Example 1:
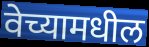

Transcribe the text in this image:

वेच्यामधील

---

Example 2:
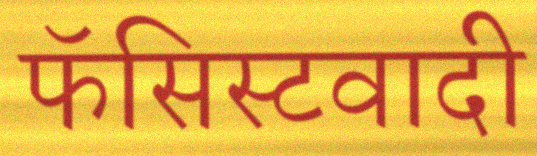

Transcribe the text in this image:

फॅसिस्टवादी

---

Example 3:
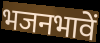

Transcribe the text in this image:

भजनभावें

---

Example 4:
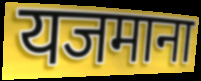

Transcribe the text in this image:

यजमाना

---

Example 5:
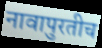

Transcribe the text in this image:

नावापुरतीच